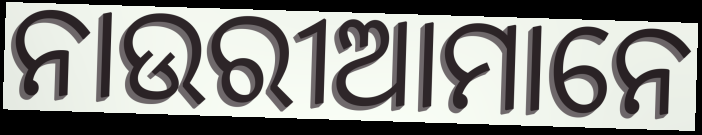
ନାଉରୀଆମାନେ